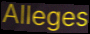
Alleges